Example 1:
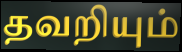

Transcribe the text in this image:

தவறியும்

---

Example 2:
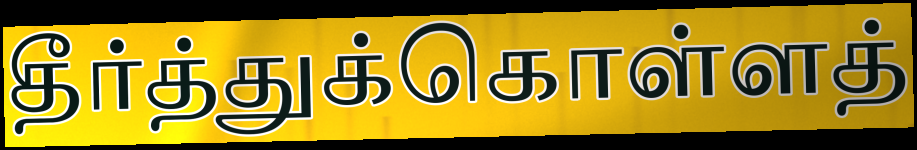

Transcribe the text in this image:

தீர்த்துக்கொள்ளத்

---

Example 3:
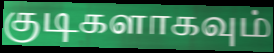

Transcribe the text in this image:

குடிகளாகவும்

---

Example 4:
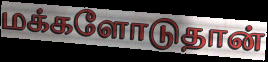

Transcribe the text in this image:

மக்களோடுதான்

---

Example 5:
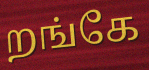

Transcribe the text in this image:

றங்கே